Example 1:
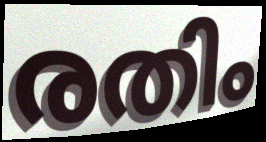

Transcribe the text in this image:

രതിം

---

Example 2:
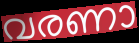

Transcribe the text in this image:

വരണാ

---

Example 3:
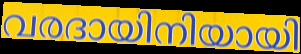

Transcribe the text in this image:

വരദായിനിയായി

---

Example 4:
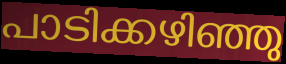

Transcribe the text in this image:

പാടിക്കഴിഞ്ഞു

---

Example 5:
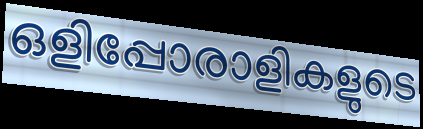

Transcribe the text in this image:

ഒളിപ്പോരാളികളുടെ